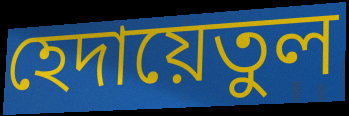
হেদায়েতুল